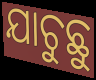
ଯାଚୁଛୁ